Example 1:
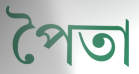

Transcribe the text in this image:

পৈতা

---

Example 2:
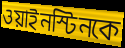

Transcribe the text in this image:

ওয়াইনস্টিনকে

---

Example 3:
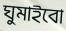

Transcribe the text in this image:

ঘুমাইবো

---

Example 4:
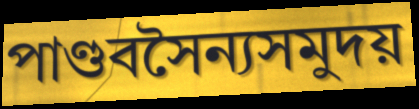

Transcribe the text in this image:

পাণ্ডবসৈন্যসমুদয়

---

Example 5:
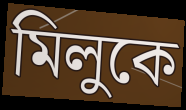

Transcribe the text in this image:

মিলুকে